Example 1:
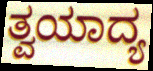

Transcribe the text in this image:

ತ್ವಯಾದ್ಯ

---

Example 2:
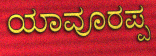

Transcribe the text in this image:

ಯಾವೂರಪ್ಪ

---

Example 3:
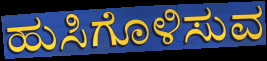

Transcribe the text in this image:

ಹುಸಿಗೊಳಿಸುವ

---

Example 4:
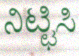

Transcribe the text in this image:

ನಿಟ್ಟಿಸಿ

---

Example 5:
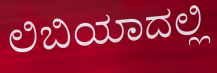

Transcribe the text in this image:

ಲಿಬಿಯಾದಲ್ಲಿ